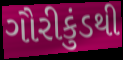
ગૌરીકુંડથી